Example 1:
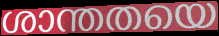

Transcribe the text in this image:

ശാന്തതയെ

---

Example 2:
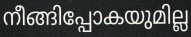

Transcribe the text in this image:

നീങ്ങിപ്പോകയുമില്ല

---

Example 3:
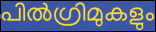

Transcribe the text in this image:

പിൽഗ്രിമുകളും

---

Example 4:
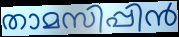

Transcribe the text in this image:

താമസിപ്പിൻ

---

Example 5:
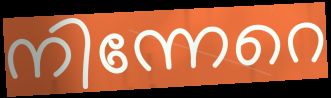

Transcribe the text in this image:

നിന്നേറെ